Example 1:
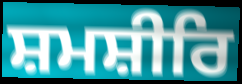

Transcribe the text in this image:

ਸ਼ਮਸ਼ੀਰਿ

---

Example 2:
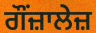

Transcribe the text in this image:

ਗੌਂਜ਼ਾਲੇਜ਼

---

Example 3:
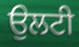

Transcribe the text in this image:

ਉਲਟੀ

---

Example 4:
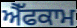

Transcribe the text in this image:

ਐੱਫਕਾਮ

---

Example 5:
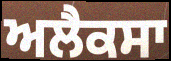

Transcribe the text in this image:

ਅਲੈਕਸਾ